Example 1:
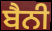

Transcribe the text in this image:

ਬੈਨੀ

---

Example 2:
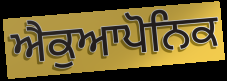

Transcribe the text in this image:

ਐਕੁਆਪੋਨਿਕ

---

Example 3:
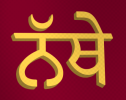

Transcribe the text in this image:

ਨੱਥੇ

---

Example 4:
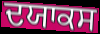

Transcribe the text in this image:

ਦਯਾਕਸ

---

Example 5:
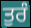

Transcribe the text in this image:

ਤੁਰੰ